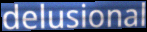
delusional